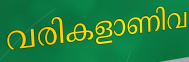
വരികളാണിവ